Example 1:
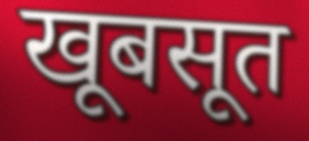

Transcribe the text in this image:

खूबसूत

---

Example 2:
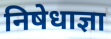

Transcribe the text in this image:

निषेधाज्ञा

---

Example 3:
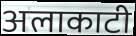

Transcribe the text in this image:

अलाकाटी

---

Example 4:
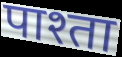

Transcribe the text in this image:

पाश्ता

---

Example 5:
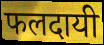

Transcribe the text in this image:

फलदायी